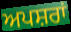
ਅਪਸ਼ਰਾਂ